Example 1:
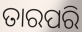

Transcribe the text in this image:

ତାରପରି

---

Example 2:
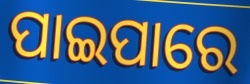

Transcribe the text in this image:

ପାଇପାରେ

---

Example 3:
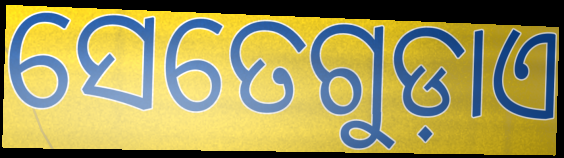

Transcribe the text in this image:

ସେତେଗୁଡ଼ାଏ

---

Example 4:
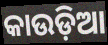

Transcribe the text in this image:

କାଉଡ଼ିଆ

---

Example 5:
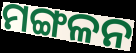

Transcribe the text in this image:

ମଙ୍ଗଳନ